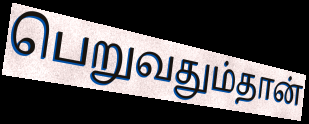
பெறுவதும்தான்